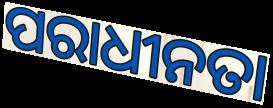
ପରାଧୀନତା